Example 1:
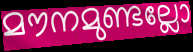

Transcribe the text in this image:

മൗനമുണ്ടല്ലോ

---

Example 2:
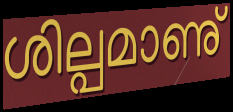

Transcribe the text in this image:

ശില്പമാണു്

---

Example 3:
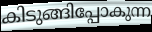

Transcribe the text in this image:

കിടുങ്ങിപ്പോകുന്ന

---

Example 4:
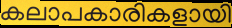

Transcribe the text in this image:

കലാപകാരികളായി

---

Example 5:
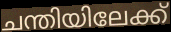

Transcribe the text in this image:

ചന്തിയിലേക്ക്